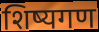
शिष्यगण